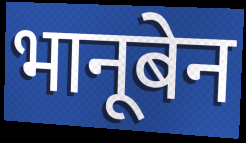
भानूबेन